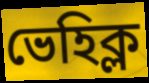
ভেহিক্ল